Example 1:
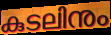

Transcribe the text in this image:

കുടലിനും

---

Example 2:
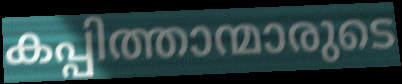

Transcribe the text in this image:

കപ്പിത്താന്മാരുടെ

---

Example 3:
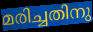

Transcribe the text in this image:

മരിച്ചതിനു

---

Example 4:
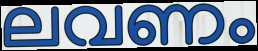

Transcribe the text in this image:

ലവണം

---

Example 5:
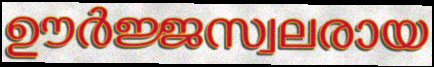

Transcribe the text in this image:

ഊർജ്ജസ്വലരായ